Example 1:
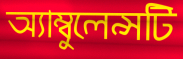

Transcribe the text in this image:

অ্যাম্বুলেন্সটি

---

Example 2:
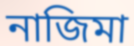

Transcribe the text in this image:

নাজিমা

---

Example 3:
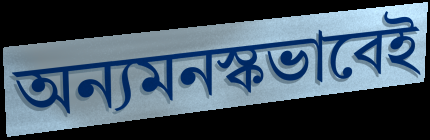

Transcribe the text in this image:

অন্যমনস্কভাবেই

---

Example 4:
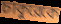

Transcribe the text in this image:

চাকুরেকে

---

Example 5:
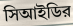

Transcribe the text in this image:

সিআইডির